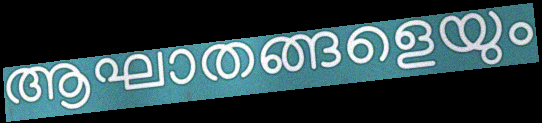
ആഘാതങ്ങളെയും